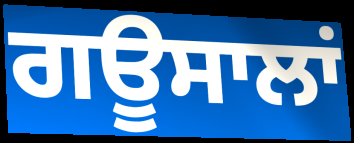
ਗਊਸਾਲਾਂ